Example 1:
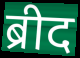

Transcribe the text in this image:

ब्रीद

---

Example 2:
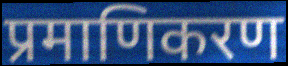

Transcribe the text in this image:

प्रमाणिकरण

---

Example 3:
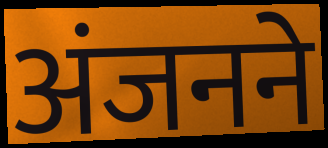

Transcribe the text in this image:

अंजनने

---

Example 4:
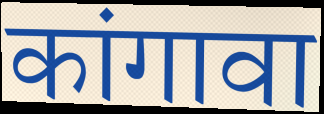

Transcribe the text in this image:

कांगावा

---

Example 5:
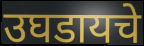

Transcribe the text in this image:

उघडायचे